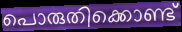
പൊരുതിക്കൊണ്ട്